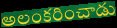
అలంకరించాడు